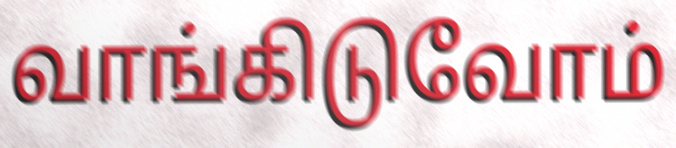
வாங்கிடுவோம்